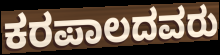
ಕರಪಾಲದವರು